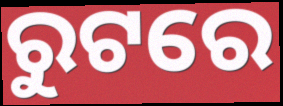
ରୁଟରେ